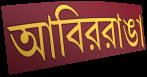
আবিররাঙা